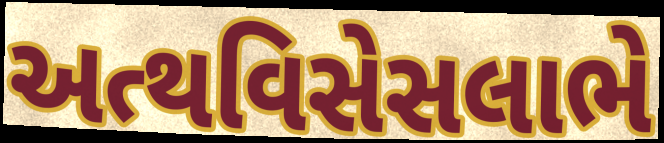
અત્થવિસેસલાભે